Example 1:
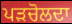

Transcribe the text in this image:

ਪੜਚੋਲਦਾ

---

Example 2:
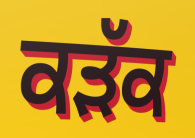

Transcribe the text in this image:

ਕੜੱਕ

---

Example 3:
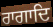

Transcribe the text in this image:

ਰਾਗਾਦਿ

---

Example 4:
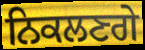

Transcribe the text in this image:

ਨਿਕਲਣਗੇ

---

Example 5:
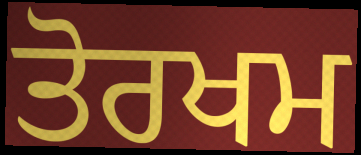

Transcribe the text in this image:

ਤੋਰਖਮ